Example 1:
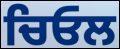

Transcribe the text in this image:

ਚਿਓਲ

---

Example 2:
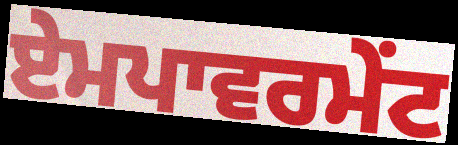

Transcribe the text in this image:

ਏਮਪਾਵਰਮੇਂਟ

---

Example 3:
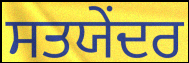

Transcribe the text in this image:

ਸਤਯੇਂਦਰ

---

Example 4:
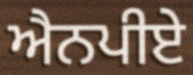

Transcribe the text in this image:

ਐਨਪੀਏ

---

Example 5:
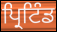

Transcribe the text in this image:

ਪ੍ਰਿਟਿੰਡ